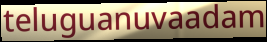
teluguanuvaadam